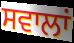
ਸਵਾਲਾਂ